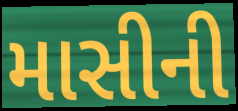
માસીની